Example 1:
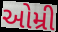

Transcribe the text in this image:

ઓમ્રી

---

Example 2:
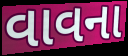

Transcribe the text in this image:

વાવના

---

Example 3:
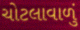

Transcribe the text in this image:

ચોટલાવાળું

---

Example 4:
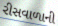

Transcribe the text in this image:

રીસવાળાની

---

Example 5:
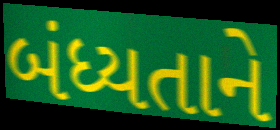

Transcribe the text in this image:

બંધ્યતાને